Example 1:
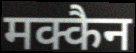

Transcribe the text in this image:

मक्कैन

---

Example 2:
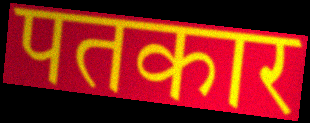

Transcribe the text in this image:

पतकार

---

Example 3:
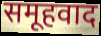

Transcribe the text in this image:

समूहवाद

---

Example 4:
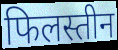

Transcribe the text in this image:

फिलस्तीन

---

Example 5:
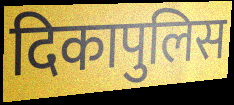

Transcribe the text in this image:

दिकापुलिस